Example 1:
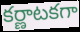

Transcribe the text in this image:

కర్ణాటకగా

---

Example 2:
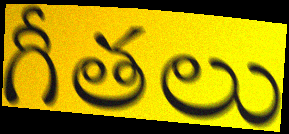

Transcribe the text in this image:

గీతలు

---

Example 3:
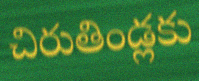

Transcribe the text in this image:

చిరుతిండ్లకు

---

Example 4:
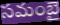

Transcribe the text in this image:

సమంబై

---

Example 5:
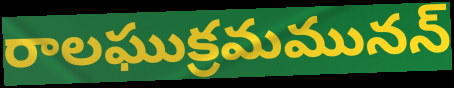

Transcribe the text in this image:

రాలఘుక్రమమునన్